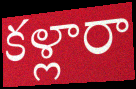
కళ్లారా